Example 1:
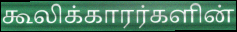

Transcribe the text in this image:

கூலிக்காரர்களின்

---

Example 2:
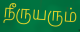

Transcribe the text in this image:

நீருயரும்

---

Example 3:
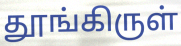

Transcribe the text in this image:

தூங்கிருள்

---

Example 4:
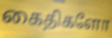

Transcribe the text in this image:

கைதிகளோ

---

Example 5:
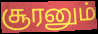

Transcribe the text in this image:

சூரனும்